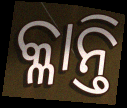
କ୍ଳାନ୍ତି